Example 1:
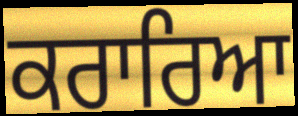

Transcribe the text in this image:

ਕਰਾਰਿਆ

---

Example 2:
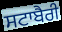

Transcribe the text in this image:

ਸਟਾਬੈਰੀ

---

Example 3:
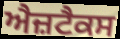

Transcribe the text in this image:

ਐਜ਼ਟੈਕਸ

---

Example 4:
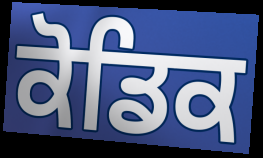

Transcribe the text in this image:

ਕੋਡਿਕ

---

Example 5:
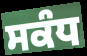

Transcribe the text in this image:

ਸਕੰਧ